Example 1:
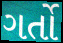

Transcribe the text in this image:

ગર્તો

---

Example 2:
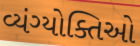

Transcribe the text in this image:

વ્યંગ્યોક્તિઓ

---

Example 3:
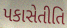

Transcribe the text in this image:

પકાસેતીતિ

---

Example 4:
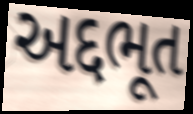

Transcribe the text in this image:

અદ્દભૂત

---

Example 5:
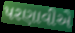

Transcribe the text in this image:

પરણાવીએ